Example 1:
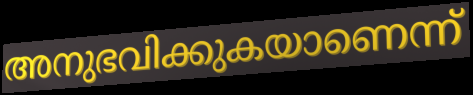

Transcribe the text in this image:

അനുഭവിക്കുകയാണെന്ന്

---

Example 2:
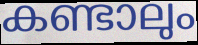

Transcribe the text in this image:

കണ്ടാലും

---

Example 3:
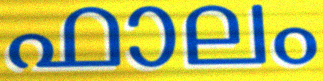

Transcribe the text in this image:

ഫാലം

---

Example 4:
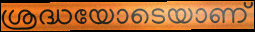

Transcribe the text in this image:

ശ്രദ്ധയോടെയാണ്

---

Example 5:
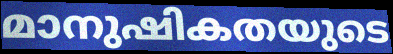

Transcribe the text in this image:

മാനുഷികതയുടെ